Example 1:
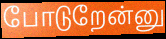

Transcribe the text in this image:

போடுறேன்னு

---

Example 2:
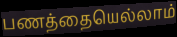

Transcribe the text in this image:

பணத்தையெல்லாம்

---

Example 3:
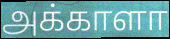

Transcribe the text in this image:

அக்காளா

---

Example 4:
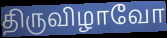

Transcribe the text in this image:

திருவிழாவோ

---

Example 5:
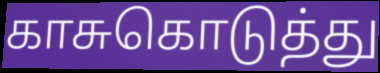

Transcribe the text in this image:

காசுகொடுத்து